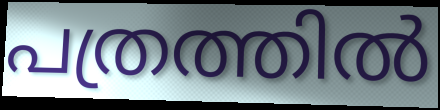
പത്രത്തിൽ